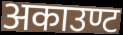
अकाउण्ट